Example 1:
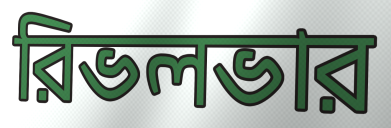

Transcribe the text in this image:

রিভলভার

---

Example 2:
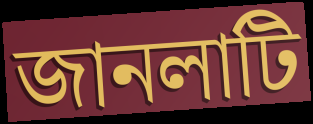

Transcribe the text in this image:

জানলাটি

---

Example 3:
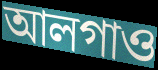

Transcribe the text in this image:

আলগাও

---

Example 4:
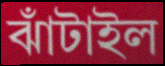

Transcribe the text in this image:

ঝাঁটাইল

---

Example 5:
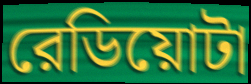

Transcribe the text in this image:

রেডিয়োটা